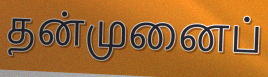
தன்முனைப்